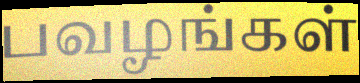
பவழங்கள்